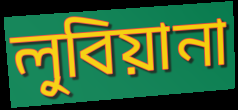
লুবিয়ানা